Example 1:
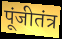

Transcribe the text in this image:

पूंजीतंत्र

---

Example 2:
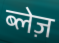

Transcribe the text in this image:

ब्लेज़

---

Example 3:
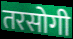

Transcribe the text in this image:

तरसोगी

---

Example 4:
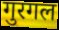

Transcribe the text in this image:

गुरगल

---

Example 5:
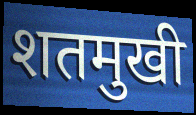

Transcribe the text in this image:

शतमुखी